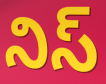
నిస్